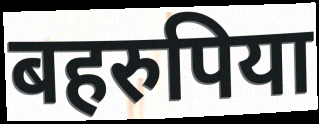
बहरुपिया